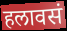
हलावसं